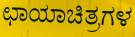
ಛಾಯಾಚಿತ್ರಗಳ